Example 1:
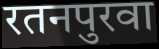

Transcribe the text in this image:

रतनपुरवा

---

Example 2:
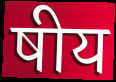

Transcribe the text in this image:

षीय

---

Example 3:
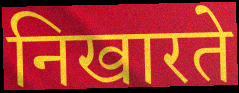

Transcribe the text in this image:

निखारते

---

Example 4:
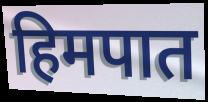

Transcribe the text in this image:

हिमपात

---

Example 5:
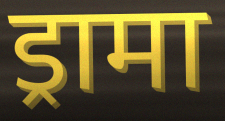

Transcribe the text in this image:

ड्रामा